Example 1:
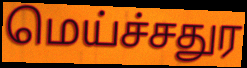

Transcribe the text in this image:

மெய்ச்சதுர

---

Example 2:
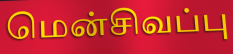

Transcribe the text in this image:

மென்சிவப்பு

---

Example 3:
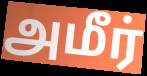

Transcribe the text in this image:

அமீர்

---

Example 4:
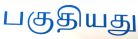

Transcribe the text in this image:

பகுதியது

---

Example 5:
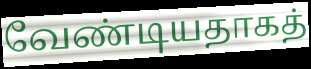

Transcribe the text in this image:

வேண்டியதாகத்